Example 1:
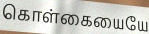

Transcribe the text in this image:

கொள்கையையே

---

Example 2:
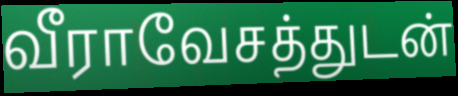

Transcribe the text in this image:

வீராவேசத்துடன்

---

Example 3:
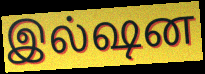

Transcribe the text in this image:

இல்ஷன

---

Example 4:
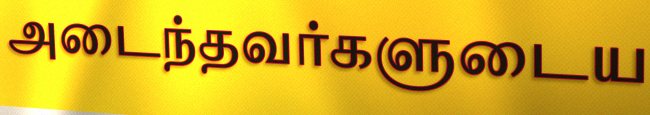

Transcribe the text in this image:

அடைந்தவர்களுடைய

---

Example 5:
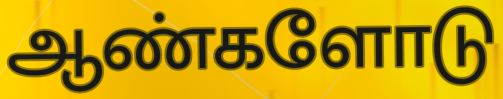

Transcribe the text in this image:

ஆண்களோடு